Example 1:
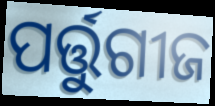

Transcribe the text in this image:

ପର୍ତ୍ତୁଗୀଜ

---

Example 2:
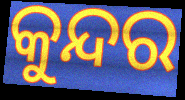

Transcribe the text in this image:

କୁନ୍ଦର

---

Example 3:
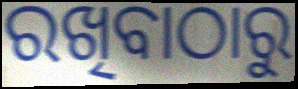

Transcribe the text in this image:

ରଖିବାଠାରୁ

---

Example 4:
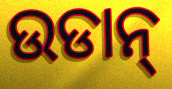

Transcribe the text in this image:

ଉଡାନ୍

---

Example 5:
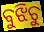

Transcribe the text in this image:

ବୁଝିଚୁ